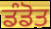
ਡੰਡੋਤ